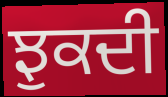
ਝੁਕਦੀ